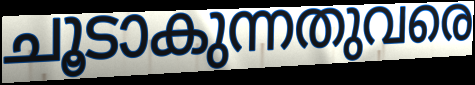
ചൂടാകുന്നതുവരെ